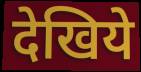
देखिये